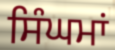
ਸਿੰਘਮਾਂ